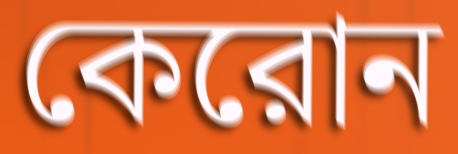
কেরোন